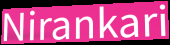
Nirankari